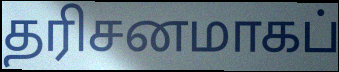
தரிசனமாகப்